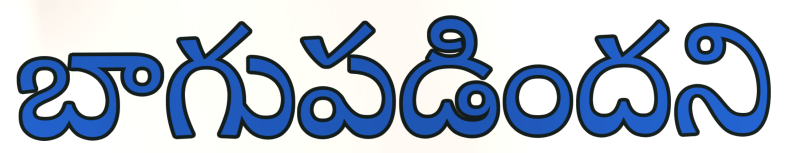
బాగుపడిందని